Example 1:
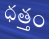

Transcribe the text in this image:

ధత్తం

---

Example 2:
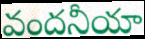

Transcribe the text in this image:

వందనీయా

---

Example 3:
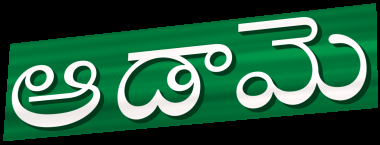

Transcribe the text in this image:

ఆడామె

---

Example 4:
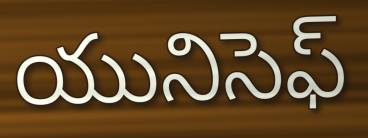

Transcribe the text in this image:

యునిసెఫ్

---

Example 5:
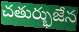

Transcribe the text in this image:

చతుర్భుజేన